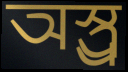
অস্ত্র্র